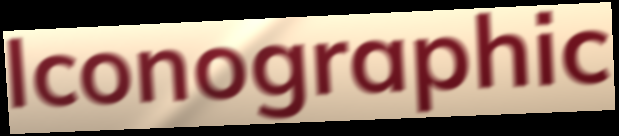
Iconographic